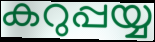
കറുപ്പയ്യ